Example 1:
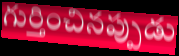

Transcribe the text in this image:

గుర్తించినప్పుడు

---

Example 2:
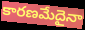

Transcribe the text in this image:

కారణమేదైనా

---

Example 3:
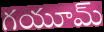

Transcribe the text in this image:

గయూమ్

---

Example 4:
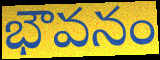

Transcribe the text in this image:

భౌవనం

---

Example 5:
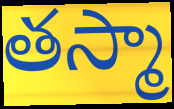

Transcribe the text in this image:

తస్మా